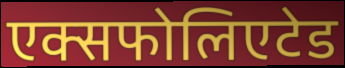
एक्सफोलिएटेड